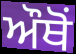
ਔਥੋਂ